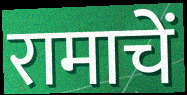
रामाचें